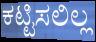
ಕಟ್ಟಿಸಲಿಲ್ಲ